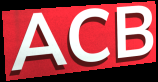
ACB